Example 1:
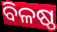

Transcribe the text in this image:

ବିଳଷ୍ଠ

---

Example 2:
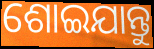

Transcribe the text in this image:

ଶୋଇଯାନ୍ତୁ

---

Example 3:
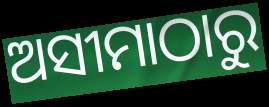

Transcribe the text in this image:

ଅସୀମାଠାରୁ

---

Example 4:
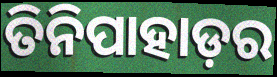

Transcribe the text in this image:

ତିନିପାହାଡ଼ର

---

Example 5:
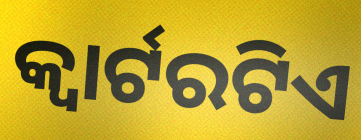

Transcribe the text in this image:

କ୍ୱାର୍ଟରଟିଏ